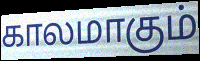
காலமாகும்